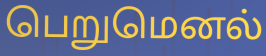
பெறுமெனல்